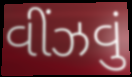
વીંઝવું